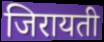
जिरायती